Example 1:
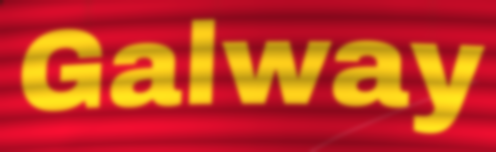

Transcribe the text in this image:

Galway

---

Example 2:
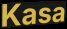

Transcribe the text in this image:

Kasa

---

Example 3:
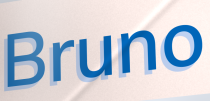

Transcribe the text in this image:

Bruno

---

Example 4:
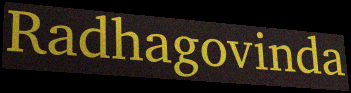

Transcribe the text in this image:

Radhagovinda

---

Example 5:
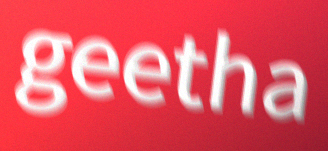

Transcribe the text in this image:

geetha